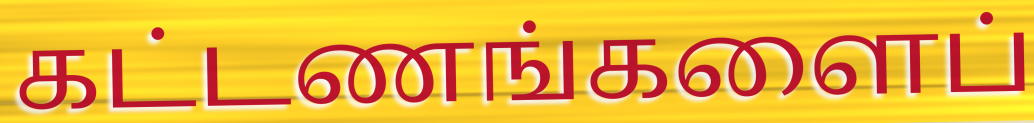
கட்டணங்களைப்